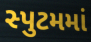
સ્પુટમમાં